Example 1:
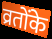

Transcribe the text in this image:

व्रतोंके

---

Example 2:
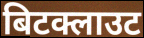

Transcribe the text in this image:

बिटक्लाउट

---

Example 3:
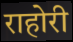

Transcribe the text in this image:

राहोरी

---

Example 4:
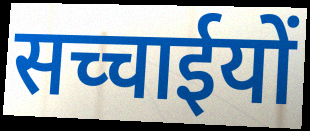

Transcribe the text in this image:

सच्चाईयों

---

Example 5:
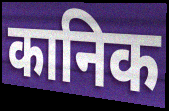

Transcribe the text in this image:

कानिक